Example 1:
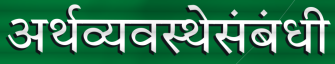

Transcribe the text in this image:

अर्थव्यवस्थेसंबंधी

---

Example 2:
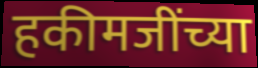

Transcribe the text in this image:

हकीमजींच्या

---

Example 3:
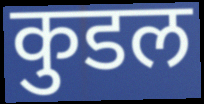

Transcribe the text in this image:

कुडल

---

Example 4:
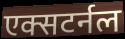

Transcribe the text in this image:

एक्सटर्नल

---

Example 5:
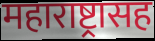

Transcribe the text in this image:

महाराष्ट्रासह